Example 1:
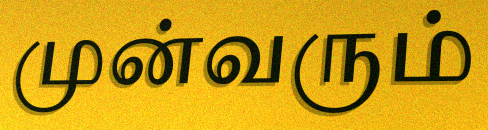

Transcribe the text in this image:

முன்வரும்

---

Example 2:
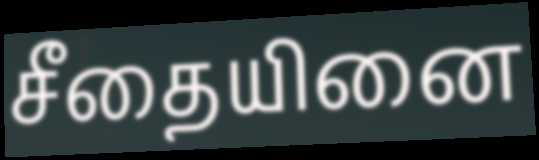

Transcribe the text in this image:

சீதையினை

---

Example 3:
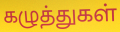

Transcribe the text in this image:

கழுத்துகள்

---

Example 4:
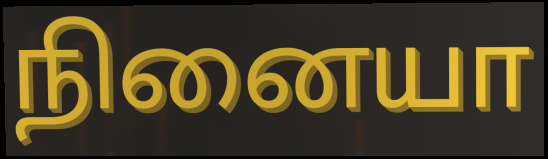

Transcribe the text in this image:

நினையா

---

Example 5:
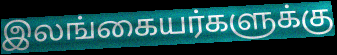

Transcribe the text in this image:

இலங்கையர்களுக்கு